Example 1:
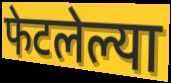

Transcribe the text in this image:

फेटलेल्या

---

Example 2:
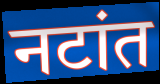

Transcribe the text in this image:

नटांत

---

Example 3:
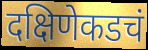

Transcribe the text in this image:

दक्षिणेकडचं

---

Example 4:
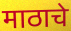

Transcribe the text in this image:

माठाचे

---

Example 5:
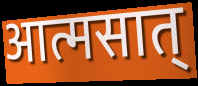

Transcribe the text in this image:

आत्मसात्